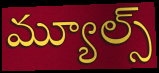
మ్యూల్స్